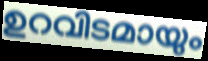
ഉറവിടമായും